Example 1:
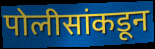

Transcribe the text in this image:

पोलीसांकडून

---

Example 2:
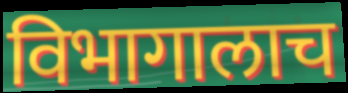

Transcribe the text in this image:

विभागालाच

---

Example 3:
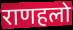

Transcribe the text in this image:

राणहलो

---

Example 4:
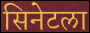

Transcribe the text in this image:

सिनेटला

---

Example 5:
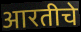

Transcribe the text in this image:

आरतीचे